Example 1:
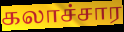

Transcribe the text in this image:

கலாச்சார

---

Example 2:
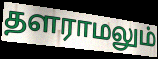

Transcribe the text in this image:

தளராமலும்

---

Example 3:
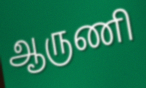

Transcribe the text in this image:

ஆருணி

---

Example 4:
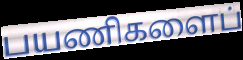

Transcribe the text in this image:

பயணிகளைப்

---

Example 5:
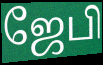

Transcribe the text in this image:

ஜேபி